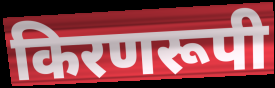
किरणरूपी